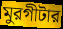
মুরগীটার